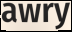
awry